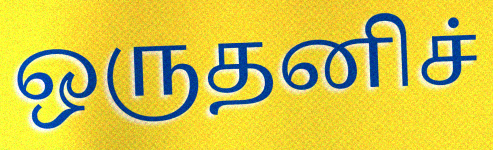
ஒருதனிச்